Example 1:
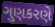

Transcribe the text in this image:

ગુણકરણે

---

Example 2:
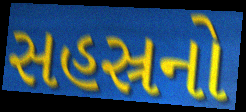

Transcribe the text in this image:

સહસ્રનો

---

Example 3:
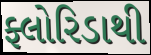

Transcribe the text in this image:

ફ્લોરિડાથી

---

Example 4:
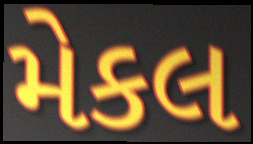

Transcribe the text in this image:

મેકલ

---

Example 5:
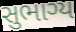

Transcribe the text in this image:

સુભાગ્ય